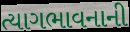
ત્યાગભાવનાની